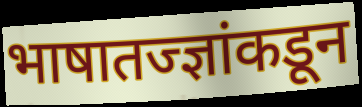
भाषातज्ज्ञांकडून